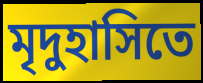
মৃদুহাসিতে